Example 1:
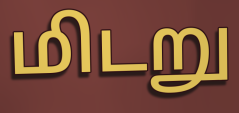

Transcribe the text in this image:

மிடறு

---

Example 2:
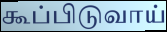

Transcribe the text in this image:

கூப்பிடுவாய்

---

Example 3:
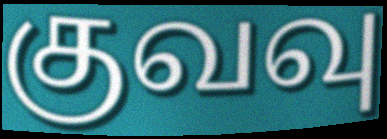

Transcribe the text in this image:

குவவு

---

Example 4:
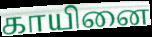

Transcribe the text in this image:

காயினை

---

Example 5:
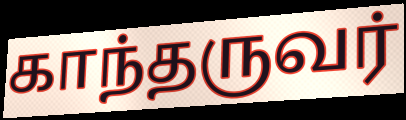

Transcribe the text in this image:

காந்தருவர்